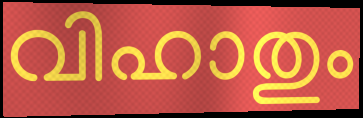
വിഹാതും